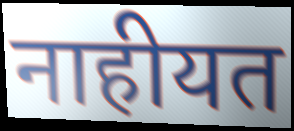
नाहीयत